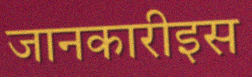
जानकारीइस